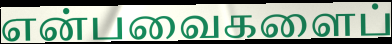
என்பவைகளைப்